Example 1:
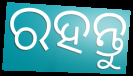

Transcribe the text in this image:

ରହନ୍ତୁ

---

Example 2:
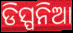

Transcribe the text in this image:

ଡିସ୍ପନିଆ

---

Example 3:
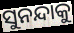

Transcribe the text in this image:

ସୁନନ୍ଦାକୁ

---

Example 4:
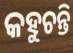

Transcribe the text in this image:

କହୁଚନ୍ତି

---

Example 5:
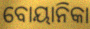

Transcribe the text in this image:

ବୋୟାନିକା